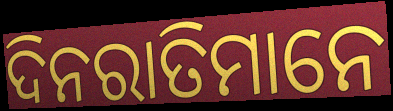
ଦିନରାତିମାନେ